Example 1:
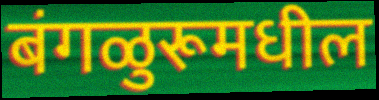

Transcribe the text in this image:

बंगळुरूमधील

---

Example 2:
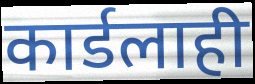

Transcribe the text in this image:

कार्डलाही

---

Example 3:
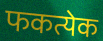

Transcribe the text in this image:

फकत्येक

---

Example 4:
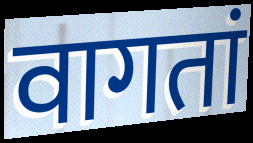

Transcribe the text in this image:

वागतां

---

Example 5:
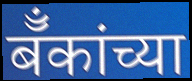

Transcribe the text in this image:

बॅँकांच्या